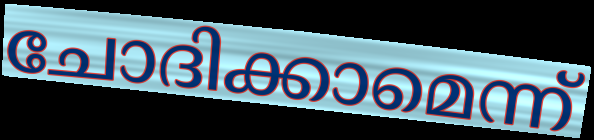
ചോദിക്കാമെന്ന്